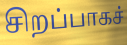
சிறப்பாகச்